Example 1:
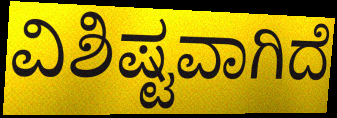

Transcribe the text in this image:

ವಿಶಿಷ್ಟವಾಗಿದೆ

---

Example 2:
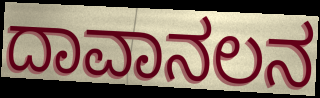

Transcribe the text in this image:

ದಾವಾನಲನ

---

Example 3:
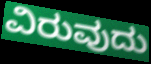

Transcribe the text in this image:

ವಿರುವುದು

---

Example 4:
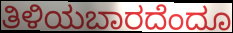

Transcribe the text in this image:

ತಿಳಿಯಬಾರದೆಂದೂ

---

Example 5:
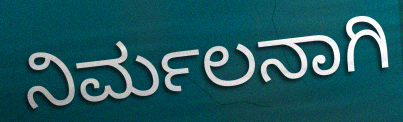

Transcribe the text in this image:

ನಿರ್ಮಲನಾಗಿ